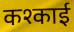
कश्काई